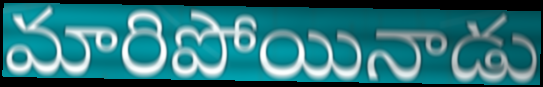
మారిపోయినాడు